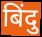
बिंदु